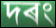
দৰং